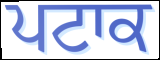
ਪਟਾਕ